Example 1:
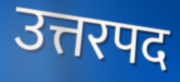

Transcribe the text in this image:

उत्तरपद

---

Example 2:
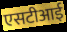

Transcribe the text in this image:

एसटीआई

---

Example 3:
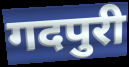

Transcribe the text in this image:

गदपुरी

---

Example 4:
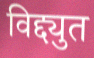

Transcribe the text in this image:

विद्द्युत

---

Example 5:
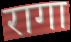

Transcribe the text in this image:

रागा